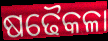
ଷଢୈକଳା